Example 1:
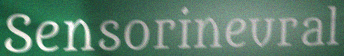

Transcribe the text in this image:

Sensorineural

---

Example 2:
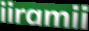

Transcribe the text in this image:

iiramii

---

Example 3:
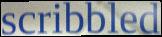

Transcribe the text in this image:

scribbled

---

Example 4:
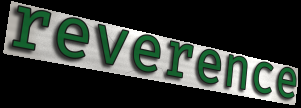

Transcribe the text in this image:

reverence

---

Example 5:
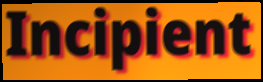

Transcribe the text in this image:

Incipient